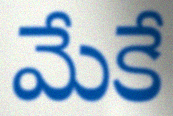
మేకే